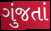
ગુંજતાં